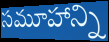
సమూహాన్ని